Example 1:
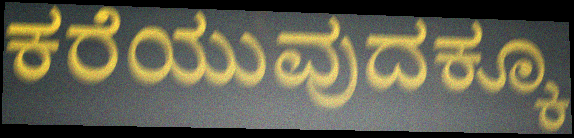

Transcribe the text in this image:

ಕರೆಯುವುದಕ್ಕೂ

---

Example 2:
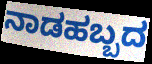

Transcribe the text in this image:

ನಾಡಹಬ್ಬದ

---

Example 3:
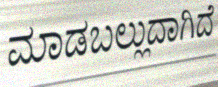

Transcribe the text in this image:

ಮಾಡಬಲ್ಲುದಾಗಿದೆ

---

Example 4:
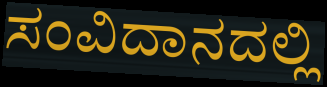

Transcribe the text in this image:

ಸಂವಿದಾನದಲ್ಲಿ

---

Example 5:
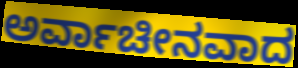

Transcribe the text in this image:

ಅರ್ವಾಚೀನವಾದ